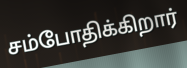
சம்போதிக்கிறார்